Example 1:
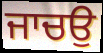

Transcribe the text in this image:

ਜਾਚਉ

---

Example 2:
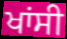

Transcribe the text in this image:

ਖਾਂਸੀ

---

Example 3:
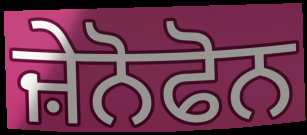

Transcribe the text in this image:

ਜ਼ੇਨੋਫੋਨ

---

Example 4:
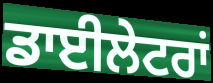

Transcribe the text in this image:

ਡਾਈਲੇਟਰਾਂ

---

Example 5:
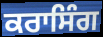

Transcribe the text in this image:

ਕਰਾਸਿੰਗ